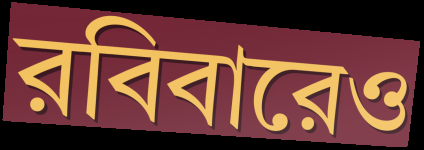
রবিবারেও